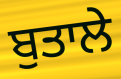
ਬੁਤਾਲੇ